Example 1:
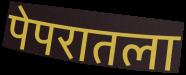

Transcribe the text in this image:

पेपरातला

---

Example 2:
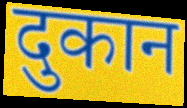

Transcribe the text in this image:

दुकान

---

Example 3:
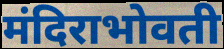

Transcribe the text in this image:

मंदिराभोवती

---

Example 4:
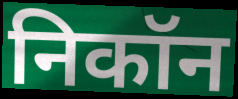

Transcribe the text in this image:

निकॉन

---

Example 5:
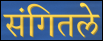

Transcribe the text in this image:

संगितले